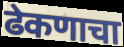
ढेकणाचा